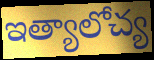
ఇత్యాలోచ్య